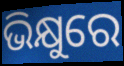
ଭିକ୍ଷୁରେ